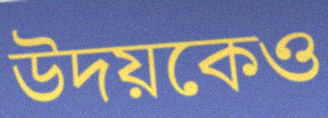
উদয়কেও